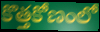
కొత్తకోణంలో